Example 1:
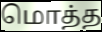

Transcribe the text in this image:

மொத்த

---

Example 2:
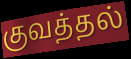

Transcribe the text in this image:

குவத்தல்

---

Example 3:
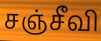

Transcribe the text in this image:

சஞ்சீவி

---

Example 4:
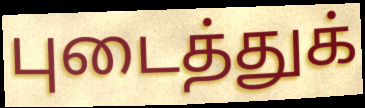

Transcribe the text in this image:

புடைத்துக்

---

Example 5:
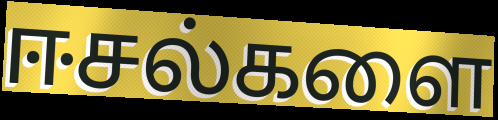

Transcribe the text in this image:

ஈசல்களை